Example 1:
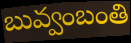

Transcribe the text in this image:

బువ్వంబంతి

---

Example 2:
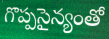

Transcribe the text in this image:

గొప్పసైన్యంతో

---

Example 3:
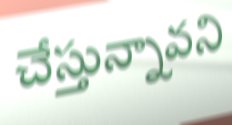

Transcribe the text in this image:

చేస్తున్నావని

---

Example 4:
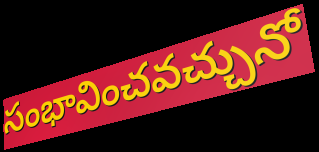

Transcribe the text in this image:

సంభావించవచ్చునో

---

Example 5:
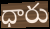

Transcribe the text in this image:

ధారు